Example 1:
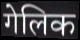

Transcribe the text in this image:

गेलिक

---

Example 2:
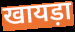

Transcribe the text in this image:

खायड़ा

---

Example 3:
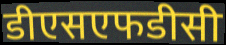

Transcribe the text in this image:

डीएसएफडीसी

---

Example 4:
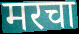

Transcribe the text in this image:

मरचा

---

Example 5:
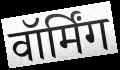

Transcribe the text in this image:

वॉर्मिंग